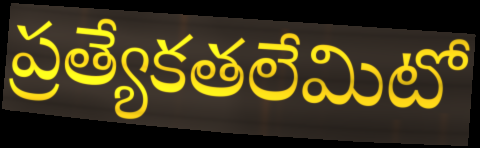
ప్రత్యేకతలేమిటో